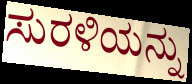
ಸುರಳಿಯನ್ನು